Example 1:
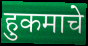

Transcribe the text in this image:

हुकमाचे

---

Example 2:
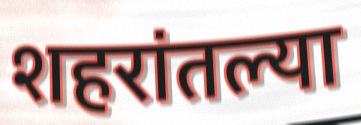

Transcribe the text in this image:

शहरांतल्या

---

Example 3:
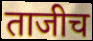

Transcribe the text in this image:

ताजीच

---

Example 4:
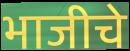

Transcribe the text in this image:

भाजीचे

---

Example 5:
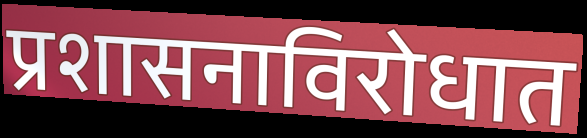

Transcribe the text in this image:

प्रशासनाविरोधात